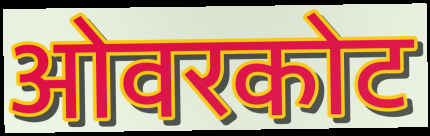
ओवरकोट